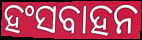
ହଂସବାହନ